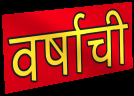
वर्षाची